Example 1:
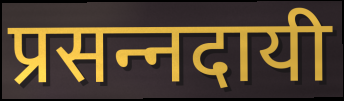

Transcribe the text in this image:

प्रसन्नदायी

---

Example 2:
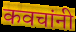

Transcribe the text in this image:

कवचांनी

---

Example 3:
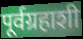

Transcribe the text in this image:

पूर्वग्रहाशी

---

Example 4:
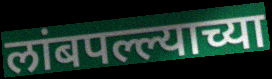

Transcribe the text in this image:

लांबपल्ल्याच्या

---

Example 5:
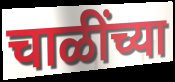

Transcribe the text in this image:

चाळींच्या